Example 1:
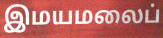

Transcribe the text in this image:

இமயமலைப்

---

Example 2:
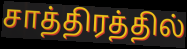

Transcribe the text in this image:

சாத்திரத்தில்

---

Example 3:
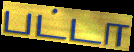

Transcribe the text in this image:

பட்டா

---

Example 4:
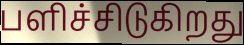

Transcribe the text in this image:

பளிச்சிடுகிறது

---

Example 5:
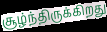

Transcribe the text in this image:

சூழ்ந்திருக்கிறது